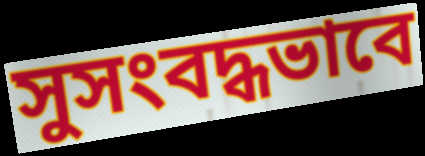
সুসংবদ্ধভাবে